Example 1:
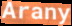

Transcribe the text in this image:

Arany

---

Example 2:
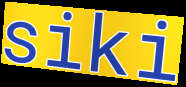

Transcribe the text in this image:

siki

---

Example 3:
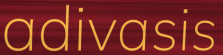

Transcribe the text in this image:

adivasis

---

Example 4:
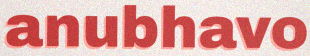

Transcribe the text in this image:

anubhavo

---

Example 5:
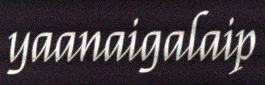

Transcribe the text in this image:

yaanaigalaip